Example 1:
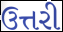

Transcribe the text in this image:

ઉત્તરી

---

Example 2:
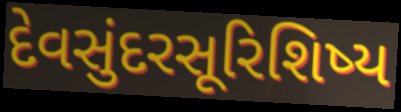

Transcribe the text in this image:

દેવસુંદરસૂરિશિષ્ય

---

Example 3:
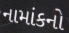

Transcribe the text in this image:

નામાંકનો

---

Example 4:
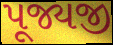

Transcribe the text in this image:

પૂજ્યજી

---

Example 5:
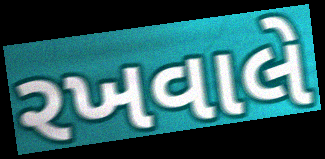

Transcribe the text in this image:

રખવાલે